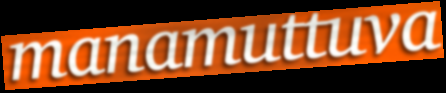
manamuttuva